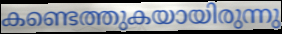
കണ്ടെത്തുകയായിരുന്നു